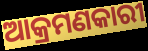
ଆକ୍ରମଣକାରୀ